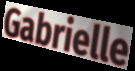
Gabrielle